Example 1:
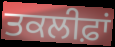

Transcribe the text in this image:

ਤਕਲੀਫ਼ਾਂ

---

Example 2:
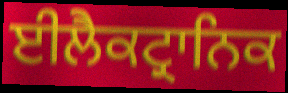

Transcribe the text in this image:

ਈਲੈਕਟ੍ਰਾਨਿਕ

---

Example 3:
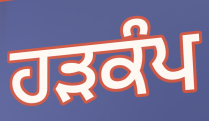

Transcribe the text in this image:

ਹਡ਼ਕੰਪ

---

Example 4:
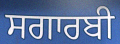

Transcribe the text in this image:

ਸਗਾਰਬੀ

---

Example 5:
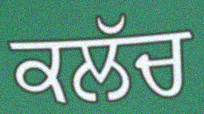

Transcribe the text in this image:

ਕਲੱਚ